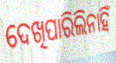
ଦେଖିପାରିଲିନାହିଁ